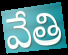
వేతి